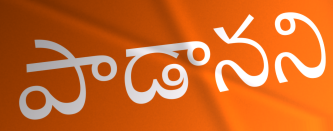
పాడానని